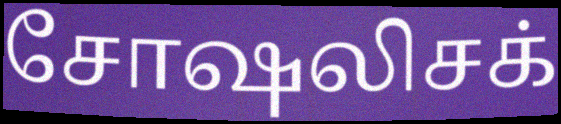
சோஷலிசக்